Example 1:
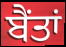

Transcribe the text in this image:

ਬੈਂਤਾਂ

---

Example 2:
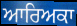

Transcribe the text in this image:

ਆਰਿਅਕਾ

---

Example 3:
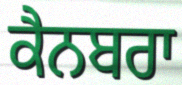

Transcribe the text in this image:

ਕੈਨਬਰਾ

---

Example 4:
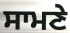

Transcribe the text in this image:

ਸਾਮਣੇ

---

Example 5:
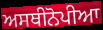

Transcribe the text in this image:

ਅਸਥੀਨੋਪੀਆ